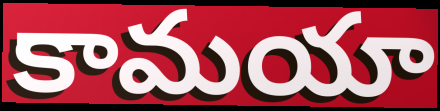
కామయా